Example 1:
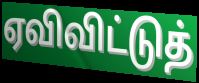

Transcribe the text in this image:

ஏவிவிட்டுத்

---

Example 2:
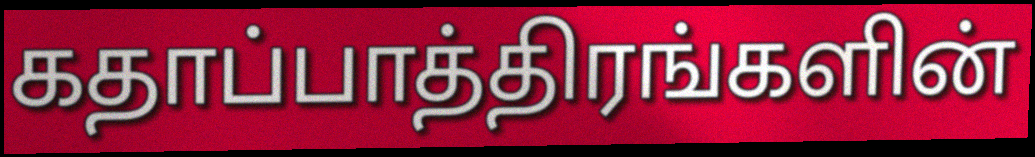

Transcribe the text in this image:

கதாப்பாத்திரங்களின்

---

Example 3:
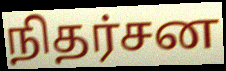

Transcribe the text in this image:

நிதர்சன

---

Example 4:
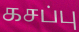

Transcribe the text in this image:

கசப்பு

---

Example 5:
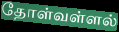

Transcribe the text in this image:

தோள்வள்ளல்